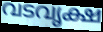
വടവൃക്ഷ